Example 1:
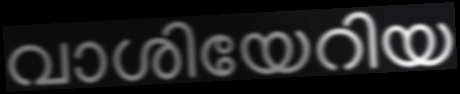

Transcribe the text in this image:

വാശിയേറിയ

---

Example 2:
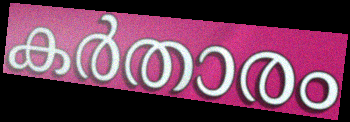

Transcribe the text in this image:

കർതാരം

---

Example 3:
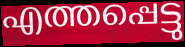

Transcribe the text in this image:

എത്തപ്പെട്ടു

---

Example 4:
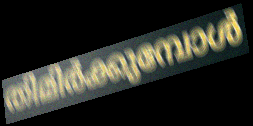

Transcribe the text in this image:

തിമിർക്കുമ്പോൾ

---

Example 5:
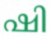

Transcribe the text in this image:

ഷി